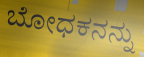
ಬೋಧಕನನ್ನು